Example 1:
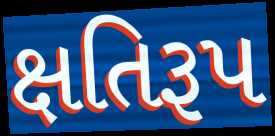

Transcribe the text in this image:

ક્ષતિરૂપ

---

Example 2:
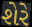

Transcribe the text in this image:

શેરે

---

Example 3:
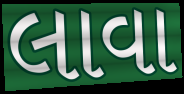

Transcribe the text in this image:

લાવા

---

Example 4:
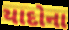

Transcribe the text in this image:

યાદોના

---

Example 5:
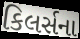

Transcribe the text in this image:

કિલર્સના